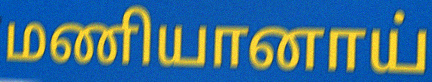
மணியானாய்